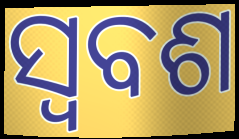
ସ୍ଵବଶ